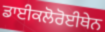
ਡਾਈਕਲੋਰੋਈਥੇਨ